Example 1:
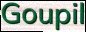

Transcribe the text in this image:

Goupil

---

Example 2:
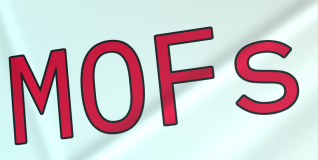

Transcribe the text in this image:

MOFs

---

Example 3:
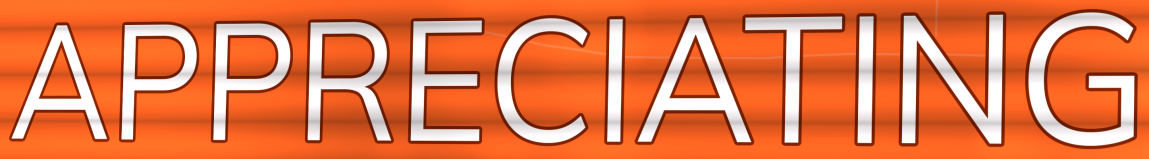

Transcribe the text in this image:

APPRECIATING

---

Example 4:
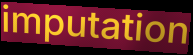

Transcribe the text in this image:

imputation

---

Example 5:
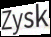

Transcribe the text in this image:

Zysk